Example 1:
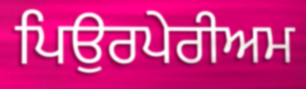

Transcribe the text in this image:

ਪਿਉਰਪੇਰੀਅਮ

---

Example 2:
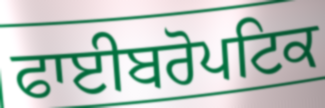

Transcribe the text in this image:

ਫਾਈਬਰੋਪਟਿਕ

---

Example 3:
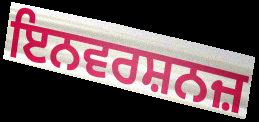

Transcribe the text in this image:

ਇਨਵਰਸ਼ਨਜ਼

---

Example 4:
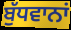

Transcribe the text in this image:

ਬੁੱਧਵਾਨਾਂ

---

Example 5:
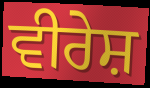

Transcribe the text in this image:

ਵੀਰੇਸ਼